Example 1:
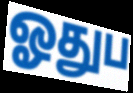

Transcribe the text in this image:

ஓதுப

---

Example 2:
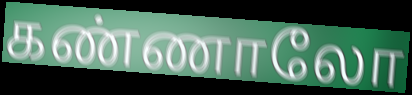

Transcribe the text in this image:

கண்ணாலோ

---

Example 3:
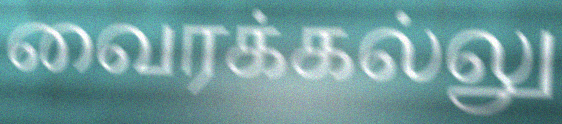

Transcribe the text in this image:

வைரக்கல்லு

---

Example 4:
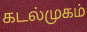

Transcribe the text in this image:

கடல்முகம்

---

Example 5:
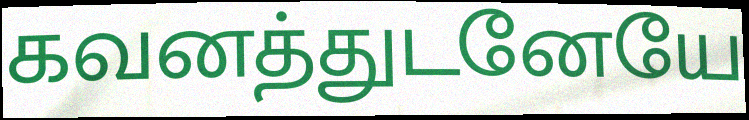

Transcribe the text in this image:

கவனத்துடனேயே